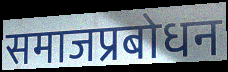
समाजप्रबोधन